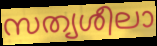
സത്യശീലാ